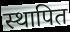
स्थापित